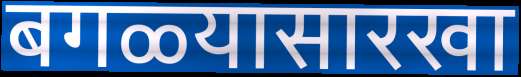
बगळ्यासारखा